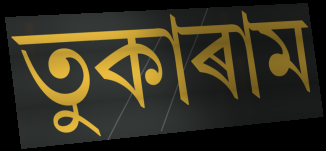
তুকাৰাম